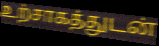
உற்சாகத்துடன்